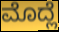
ಮೊದ್ಲೆ